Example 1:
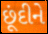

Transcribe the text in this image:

છૂંદીને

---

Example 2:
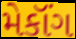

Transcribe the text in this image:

મેકૉંગ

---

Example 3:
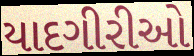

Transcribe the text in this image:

યાદગીરીઓ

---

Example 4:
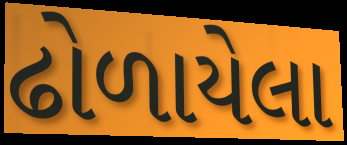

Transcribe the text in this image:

ઢોળાયેલા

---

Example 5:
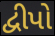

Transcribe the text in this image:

દ્વીપો